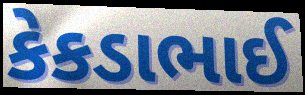
કેકડાભાઈ